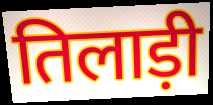
तिलाड़ी